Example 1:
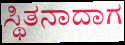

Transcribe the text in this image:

ಸ್ಥಿತನಾದಾಗ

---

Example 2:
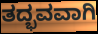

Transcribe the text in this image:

ತದ್ಭವವಾಗಿ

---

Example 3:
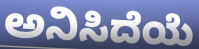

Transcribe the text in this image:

ಅನಿಸಿದೆಯೆ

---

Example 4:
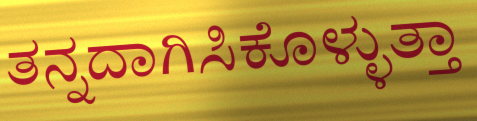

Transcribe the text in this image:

ತನ್ನದಾಗಿಸಿಕೊಳ್ಳುತ್ತಾ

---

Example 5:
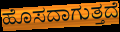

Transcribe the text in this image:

ಹೊಸದಾಗುತ್ತದೆ